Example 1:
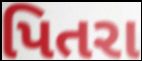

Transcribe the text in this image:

પિતરા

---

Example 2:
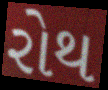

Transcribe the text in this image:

રોથ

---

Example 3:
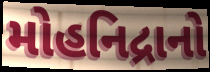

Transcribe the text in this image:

મોહનિદ્રાનો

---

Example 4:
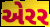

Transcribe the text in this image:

એરર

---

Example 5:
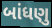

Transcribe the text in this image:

બાંધણુ